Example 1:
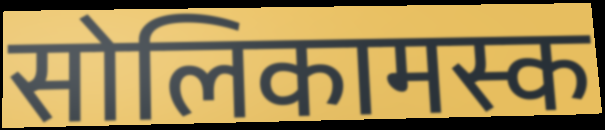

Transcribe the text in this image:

सोलिकामस्क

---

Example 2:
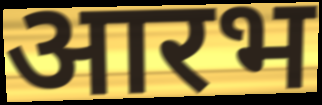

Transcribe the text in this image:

आरभ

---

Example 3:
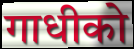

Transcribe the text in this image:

गाधीको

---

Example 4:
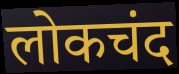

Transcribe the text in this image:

लोकचंद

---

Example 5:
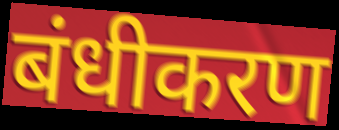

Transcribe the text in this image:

बंधीकरण